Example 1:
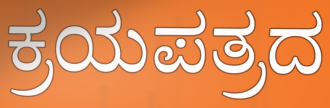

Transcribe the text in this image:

ಕ್ರಯಪತ್ರದ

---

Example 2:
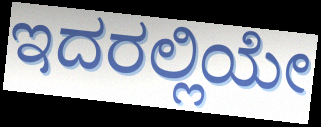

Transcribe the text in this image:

ಇದರಲ್ಲಿಯೇ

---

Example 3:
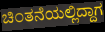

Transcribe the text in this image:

ಚಿಂತನೆಯಲ್ಲಿದ್ದಾಗ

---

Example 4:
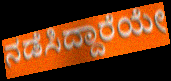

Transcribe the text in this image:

ನಡೆಸಿದ್ದಾರೆಯೇ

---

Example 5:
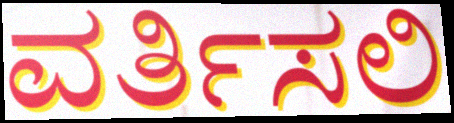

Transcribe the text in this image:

ವರ್ತಿಸಲಿ